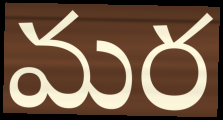
మర